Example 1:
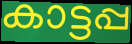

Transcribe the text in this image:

കാട്ടപ്പ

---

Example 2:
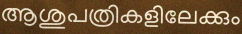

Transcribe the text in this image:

ആശുപത്രികളിലേക്കും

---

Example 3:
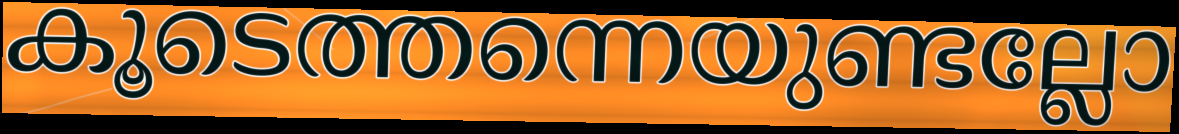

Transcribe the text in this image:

കൂടെത്തന്നെയുണ്ടല്ലോ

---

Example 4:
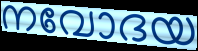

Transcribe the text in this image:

നവോദയ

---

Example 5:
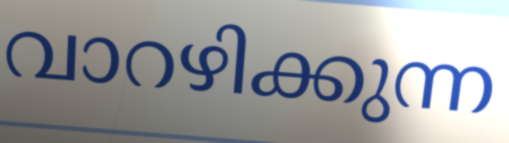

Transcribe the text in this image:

വാറഴിക്കുന്ന